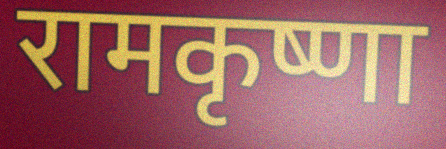
रामकृष्णा